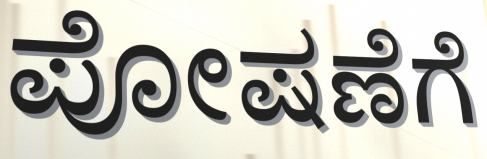
ಪೋಷಣೆಗೆ